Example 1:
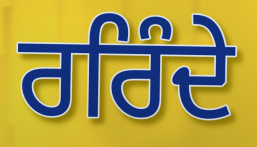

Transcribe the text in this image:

ਰਰਿੰਦੇ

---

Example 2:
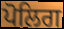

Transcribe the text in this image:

ਪੋਲਿਗ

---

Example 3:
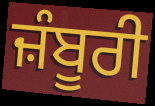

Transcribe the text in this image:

ਜ਼ੰਬੂਰੀ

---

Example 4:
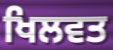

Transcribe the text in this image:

ਖਿਲਵਤ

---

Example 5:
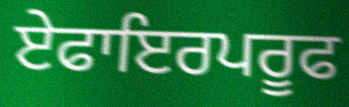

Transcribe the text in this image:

ਏਫਾਇਰਪਰੂਫ